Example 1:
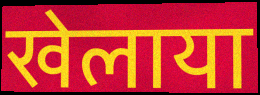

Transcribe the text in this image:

खेलाया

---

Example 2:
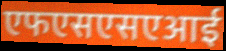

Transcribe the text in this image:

एफएसएसएआई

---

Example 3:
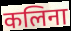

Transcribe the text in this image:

कलिना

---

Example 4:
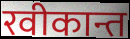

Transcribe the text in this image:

रवीकान्त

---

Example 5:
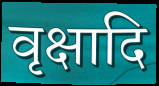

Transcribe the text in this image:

वृक्षादि